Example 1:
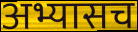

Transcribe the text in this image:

अभ्यासच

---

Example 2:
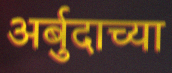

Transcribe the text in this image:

अर्बुदाच्या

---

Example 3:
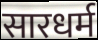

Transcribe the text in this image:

सारधर्म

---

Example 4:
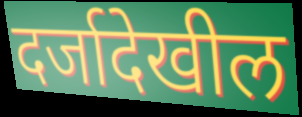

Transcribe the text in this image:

दर्जादेखील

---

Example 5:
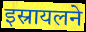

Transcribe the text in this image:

इस्रायलने